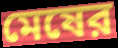
মেষের